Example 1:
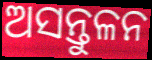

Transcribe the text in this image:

ଅସନ୍ତୁଳନ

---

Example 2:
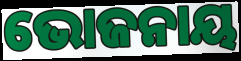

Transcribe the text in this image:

ଭୋଜନାୟ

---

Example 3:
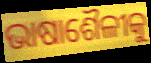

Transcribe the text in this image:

ଭାଷାଶୈଳୀକୁ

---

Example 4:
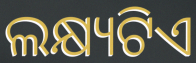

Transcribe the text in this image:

ଲକ୍ଷ୍ୟଟିଏ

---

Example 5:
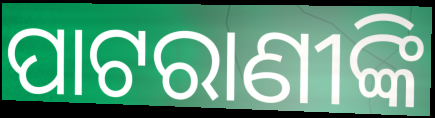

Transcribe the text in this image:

ପାଟରାଣୀଙ୍କି